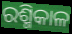
ରଶ୍ମିକାଳ